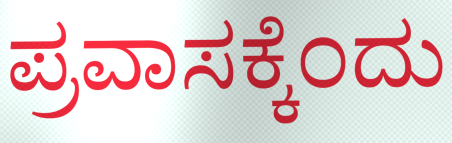
ಪ್ರವಾಸಕ್ಕೆಂದು